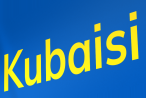
Kubaisi